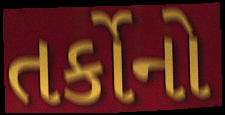
તર્કોનો